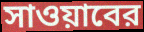
সাওয়াবের